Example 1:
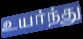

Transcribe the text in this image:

உயர்ந்து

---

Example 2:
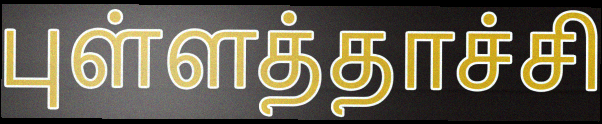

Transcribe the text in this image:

புள்ளத்தாச்சி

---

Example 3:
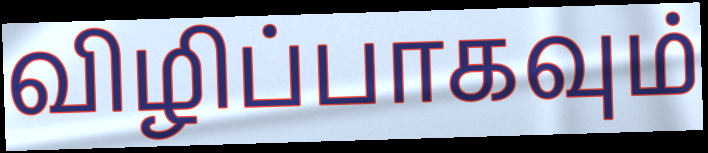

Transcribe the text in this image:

விழிப்பாகவும்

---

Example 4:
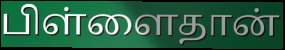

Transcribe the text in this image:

பிள்ளைதான்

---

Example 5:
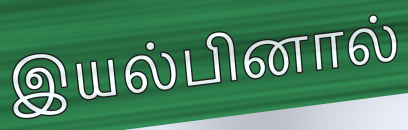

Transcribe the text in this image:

இயல்பினால்